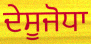
ਦੇਸੂਜੋਧਾ